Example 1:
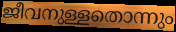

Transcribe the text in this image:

ജീവനുള്ളതൊന്നും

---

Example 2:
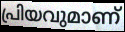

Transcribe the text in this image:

പ്രിയവുമാണ്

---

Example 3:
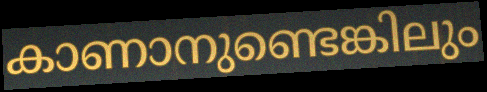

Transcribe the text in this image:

കാണാനുണ്ടെങ്കിലും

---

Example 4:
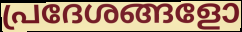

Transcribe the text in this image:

പ്രദേശങ്ങളോ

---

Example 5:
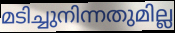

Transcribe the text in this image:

മടിച്ചുനിന്നതുമില്ല